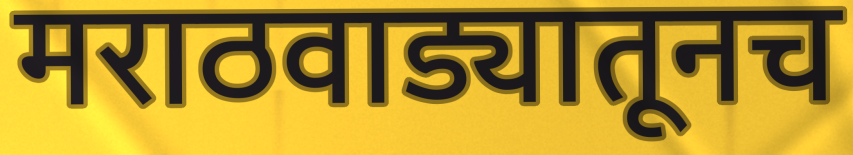
मराठवाड्यातूनच